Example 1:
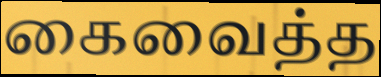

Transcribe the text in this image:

கைவைத்த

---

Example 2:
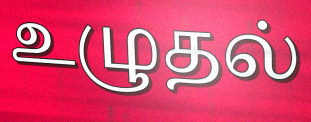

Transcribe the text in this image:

உழுதல்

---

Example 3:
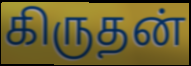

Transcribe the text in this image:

கிருதன்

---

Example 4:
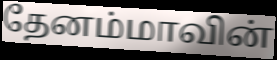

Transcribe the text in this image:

தேனம்மாவின்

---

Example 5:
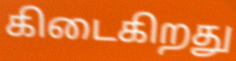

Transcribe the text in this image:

கிடைகிறது